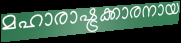
മഹാരാഷ്ട്രക്കാരനായ